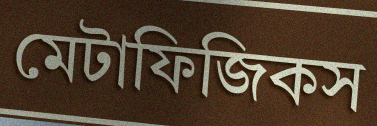
মেটাফিজিকস